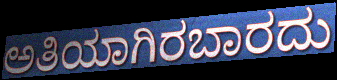
ಅತಿಯಾಗಿರಬಾರದು